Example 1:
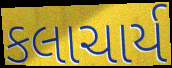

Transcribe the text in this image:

કલાચાર્ય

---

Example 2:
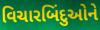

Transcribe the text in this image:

વિચારબિંદુઓને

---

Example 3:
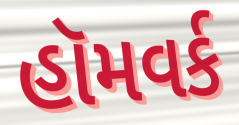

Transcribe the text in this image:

હૉમવર્ક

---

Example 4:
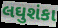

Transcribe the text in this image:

લઘુશંકા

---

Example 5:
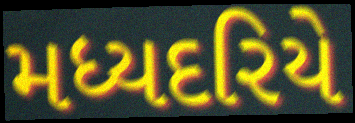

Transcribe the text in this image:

મધ્યદરિયે